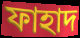
ফাহাদ